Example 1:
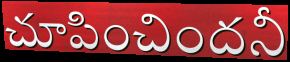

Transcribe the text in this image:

చూపించిందనీ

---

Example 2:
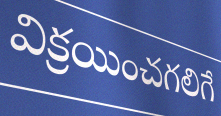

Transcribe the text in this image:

విక్రయించగలిగే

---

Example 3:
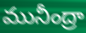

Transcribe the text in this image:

మునీంద్రా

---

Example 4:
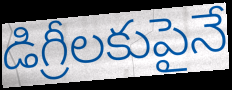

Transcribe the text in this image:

డిగ్రీలకుపైనే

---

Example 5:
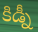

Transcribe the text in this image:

కిడ్నీ